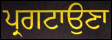
ਪ੍ਰਗਟਾਉਣਾ